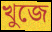
খুজে